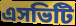
এসভিটি